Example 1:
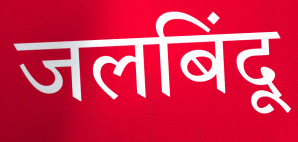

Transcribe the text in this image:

जलबिंदू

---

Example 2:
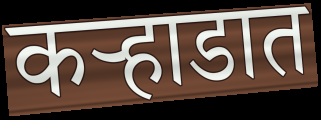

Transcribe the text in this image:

कऱ्हाडात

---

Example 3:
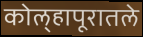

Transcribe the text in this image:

कोल्हापूरातले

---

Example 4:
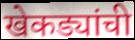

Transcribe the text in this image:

खेकड्यांची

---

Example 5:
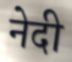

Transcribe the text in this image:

नेदी